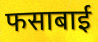
फसाबाई